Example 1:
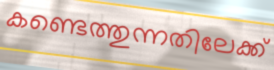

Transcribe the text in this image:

കണ്ടെത്തുന്നതിലേക്ക്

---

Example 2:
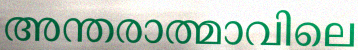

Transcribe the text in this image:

അന്തരാത്മാവിലെ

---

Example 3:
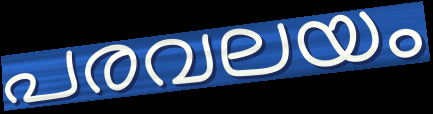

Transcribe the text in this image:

പരവലയം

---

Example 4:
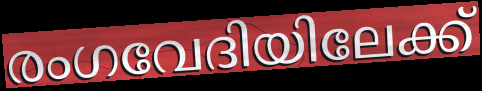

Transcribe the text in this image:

രംഗവേദിയിലേക്ക്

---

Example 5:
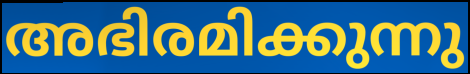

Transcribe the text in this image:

അഭിരമിക്കുന്നു